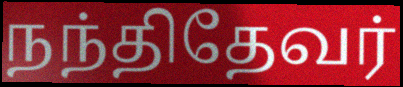
நந்திதேவர்